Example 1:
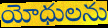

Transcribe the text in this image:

యోధులను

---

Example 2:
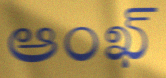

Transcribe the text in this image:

ఆంఖ్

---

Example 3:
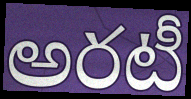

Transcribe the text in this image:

అరటీ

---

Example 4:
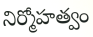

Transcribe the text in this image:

నిర్మోహత్వం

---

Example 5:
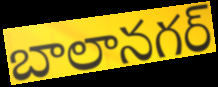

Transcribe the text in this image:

బాలానగర్